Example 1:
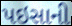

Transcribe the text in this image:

પઇસાની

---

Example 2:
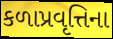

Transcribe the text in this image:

કળાપ્રવૃત્તિના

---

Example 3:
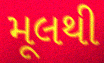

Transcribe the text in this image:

મૂલથી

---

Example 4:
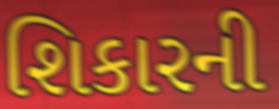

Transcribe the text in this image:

શિકારની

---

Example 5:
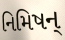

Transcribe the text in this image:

નિમિષન્